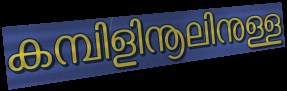
കമ്പിളിനൂലിനുള്ള